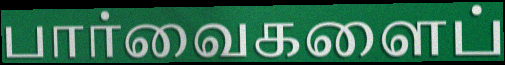
பார்வைகளைப்